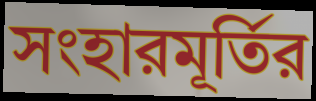
সংহারমূর্তির